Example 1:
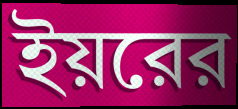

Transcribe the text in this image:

ইয়রের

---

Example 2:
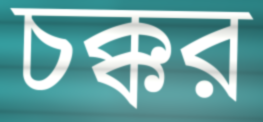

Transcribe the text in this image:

চক্কর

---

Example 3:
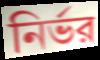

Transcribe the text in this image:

নির্ভর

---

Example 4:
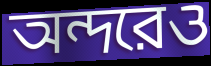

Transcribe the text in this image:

অন্দরেও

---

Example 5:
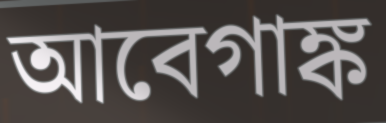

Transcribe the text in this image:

আবেগাঙ্ক